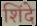
शिंदे